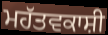
ਮਹੱਤਵਕਾਸ਼ੀ